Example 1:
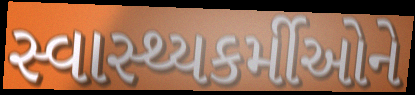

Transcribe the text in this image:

સ્વાસ્થ્યકર્મીઓને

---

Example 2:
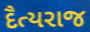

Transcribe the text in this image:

દૈત્યરાજ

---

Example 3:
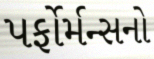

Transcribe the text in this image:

પર્ફોર્મન્સનો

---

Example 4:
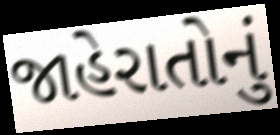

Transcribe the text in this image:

જાહેરાતોનું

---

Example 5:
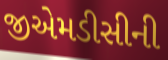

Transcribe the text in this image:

જીએમડીસીની